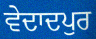
ਵੇਦਾਦਪੁਰ